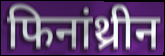
फिनांथ्रीन